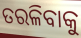
ତରଳିବାକୁ